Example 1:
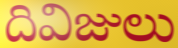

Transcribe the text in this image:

దివిజులు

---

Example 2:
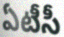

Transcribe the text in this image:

ఏటీసీ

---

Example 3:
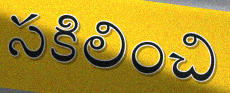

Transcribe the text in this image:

సకిలించి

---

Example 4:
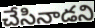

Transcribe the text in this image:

చేసినాడని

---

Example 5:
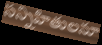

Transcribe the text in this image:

సన్నిహితులనూ